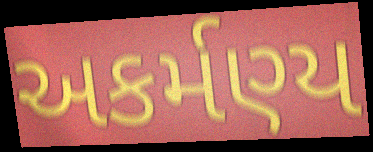
અકર્મણ્ય